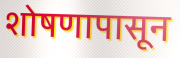
शोषणापासून